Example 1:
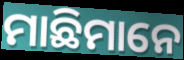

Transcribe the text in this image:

ମାଛିମାନେ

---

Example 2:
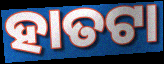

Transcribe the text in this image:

ହାତଟା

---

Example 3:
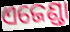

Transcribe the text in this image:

ଏଜେଣ୍ଡା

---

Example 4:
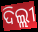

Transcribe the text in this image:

ଦିଲ୍ଲୀ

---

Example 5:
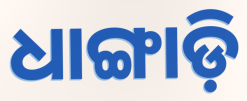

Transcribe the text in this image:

ଧାଙ୍ଗାଡ଼ି